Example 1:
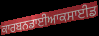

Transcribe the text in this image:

ਕਾਰਬਨਡਾਈਆਕਸਾਈਡ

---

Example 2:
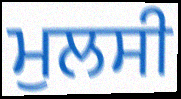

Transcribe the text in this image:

ਮੁਲਸੀ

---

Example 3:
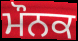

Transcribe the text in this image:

ਮੌਨਕ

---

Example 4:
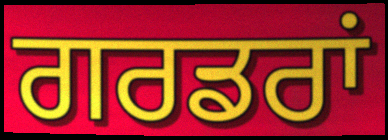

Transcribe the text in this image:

ਗਰਡਰਾਂ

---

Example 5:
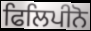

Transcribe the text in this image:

ਫਿਲਿਪੀਨੋ